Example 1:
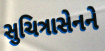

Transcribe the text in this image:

સુચિત્રાસેનને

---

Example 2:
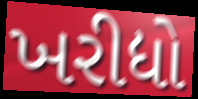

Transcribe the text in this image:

ખરીદ્યો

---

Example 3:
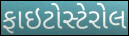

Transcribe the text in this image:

ફાઇટોસ્ટેરોલ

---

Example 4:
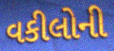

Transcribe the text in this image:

વકીલોની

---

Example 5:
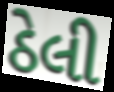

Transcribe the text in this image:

ઠેલી